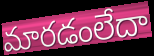
మారడంలేదా